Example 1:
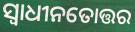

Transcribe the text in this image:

ସ୍ୱାଧୀନତୋତ୍ତର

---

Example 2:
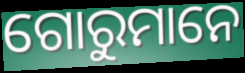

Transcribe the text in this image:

ଗୋରୁମାନେ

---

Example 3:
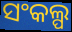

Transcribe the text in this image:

ସଂକଲ୍ପ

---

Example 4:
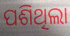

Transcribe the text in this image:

ପଶିଥିଲା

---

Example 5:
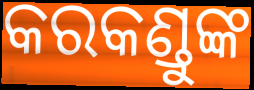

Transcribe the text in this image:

କରକଣ୍ଡୁଙ୍କ